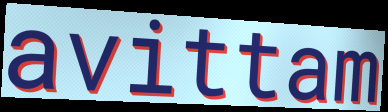
avittam